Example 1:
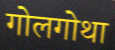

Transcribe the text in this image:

गोलगोथा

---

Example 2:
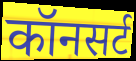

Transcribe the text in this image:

कॉनसर्ट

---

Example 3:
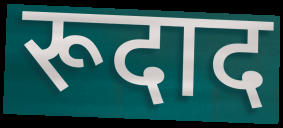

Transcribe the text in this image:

रूदाद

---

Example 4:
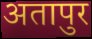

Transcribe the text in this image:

अतापुर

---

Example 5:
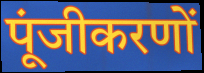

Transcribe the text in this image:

पूंजीकरणों